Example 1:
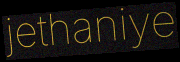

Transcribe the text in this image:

jethaniye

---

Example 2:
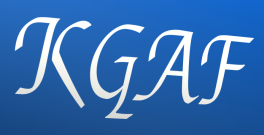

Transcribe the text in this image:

KGAF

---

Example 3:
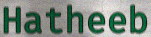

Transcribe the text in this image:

Hatheeb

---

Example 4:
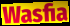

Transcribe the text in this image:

Wasfia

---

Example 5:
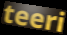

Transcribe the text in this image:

teeri